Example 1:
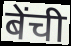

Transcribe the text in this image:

बेंची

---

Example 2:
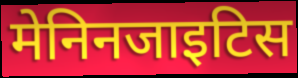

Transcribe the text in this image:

मेनिनजाइटिस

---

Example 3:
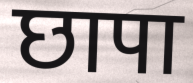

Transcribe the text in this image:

छापा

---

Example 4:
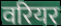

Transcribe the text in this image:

वरियर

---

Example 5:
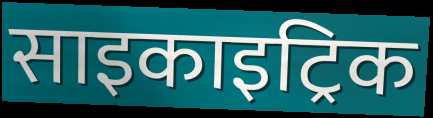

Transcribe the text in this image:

साइकाइट्रिक